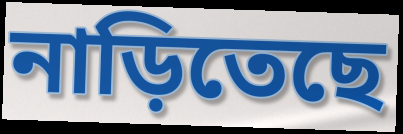
নাড়িতেছে